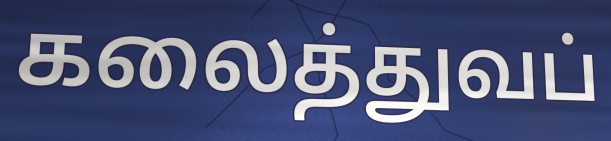
கலைத்துவப்